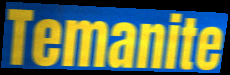
Temanite